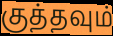
குத்தவும்